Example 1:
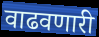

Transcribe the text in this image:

वाढवणारी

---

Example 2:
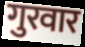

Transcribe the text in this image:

गुरवार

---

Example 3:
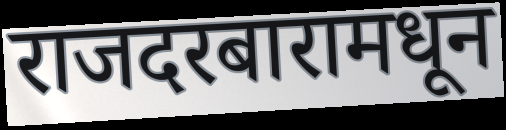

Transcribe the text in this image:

राजदरबारामधून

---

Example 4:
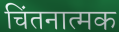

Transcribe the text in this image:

चिंतनात्मक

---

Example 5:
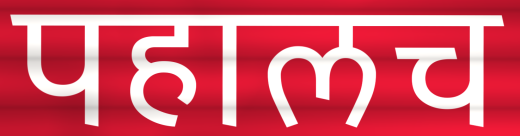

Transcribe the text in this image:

पहालच